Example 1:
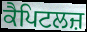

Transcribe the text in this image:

ਕੈਪਿਟਲਜ਼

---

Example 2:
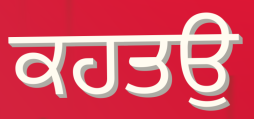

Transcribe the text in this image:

ਕਹਤਉ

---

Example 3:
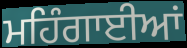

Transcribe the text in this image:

ਮਹਿੰਗਾਈਆਂ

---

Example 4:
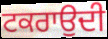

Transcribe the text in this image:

ਟਕਰਾਉਦੀ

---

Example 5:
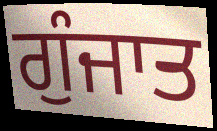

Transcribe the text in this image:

ਗੁੰਜਾਤ